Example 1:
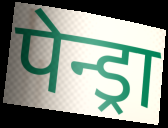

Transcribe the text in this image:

पेन्ड्रा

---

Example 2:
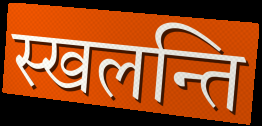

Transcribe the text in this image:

स्खलन्ति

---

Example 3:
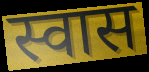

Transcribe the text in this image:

स्वास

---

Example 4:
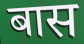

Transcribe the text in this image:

बास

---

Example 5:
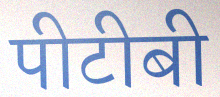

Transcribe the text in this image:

पीटीबी